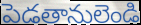
పెడతానులెండి